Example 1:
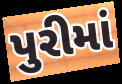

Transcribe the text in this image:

પુરીમાં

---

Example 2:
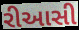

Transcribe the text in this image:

રીઆસી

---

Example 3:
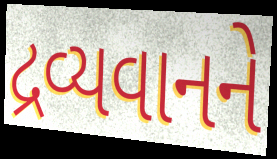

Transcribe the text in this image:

દ્રવ્યવાનને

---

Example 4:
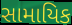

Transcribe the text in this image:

સામાયિક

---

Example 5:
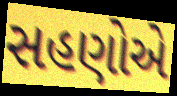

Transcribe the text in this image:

સહણોએ